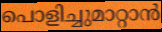
പൊളിച്ചുമാറ്റാൻ